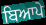
ਬਿਆਪੇ